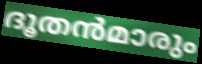
ദൂതൻമാരും